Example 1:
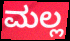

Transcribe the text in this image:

ಮಲ್ಲ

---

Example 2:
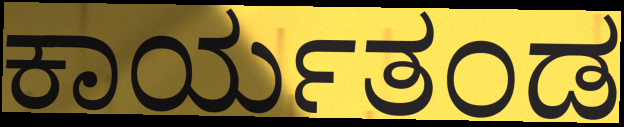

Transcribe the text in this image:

ಕಾರ್ಯತಂಡ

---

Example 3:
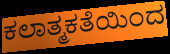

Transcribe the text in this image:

ಕಲಾತ್ಮಕತೆಯಿಂದ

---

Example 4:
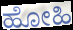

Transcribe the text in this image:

ಹೋಹಿ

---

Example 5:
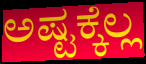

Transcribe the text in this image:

ಅಷ್ಟಕ್ಕೆಲ್ಲ